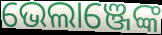
ଭେଲାଞ୍ଜେଙ୍କ